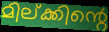
മില്ക്കിന്റെ